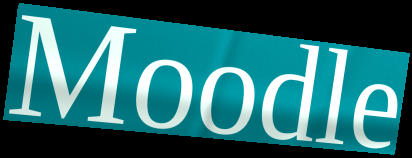
Moodle